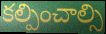
కల్పించాల్సి